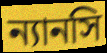
ন্যানসি